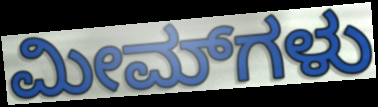
ಮೀಮ್‌ಗಳು